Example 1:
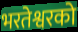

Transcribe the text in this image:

भरतेश्वरको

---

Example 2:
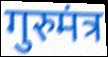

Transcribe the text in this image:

गुरुमंत्र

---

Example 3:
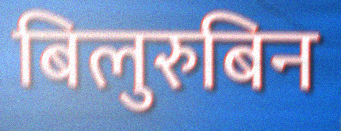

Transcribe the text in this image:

बिलुरुबिन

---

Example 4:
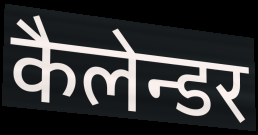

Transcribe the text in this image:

कैलेन्डर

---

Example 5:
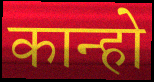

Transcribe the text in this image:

कान्हो